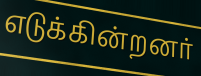
எடுக்கின்றனர்